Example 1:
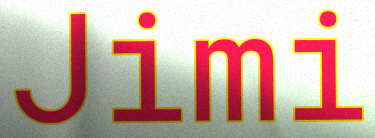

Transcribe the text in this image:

Jimi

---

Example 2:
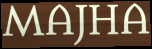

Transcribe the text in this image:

MAJHA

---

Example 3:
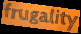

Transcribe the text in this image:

frugality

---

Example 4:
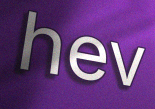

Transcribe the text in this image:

hev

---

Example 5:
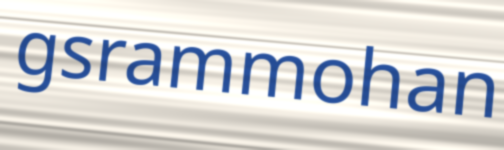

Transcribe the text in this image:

gsrammohan